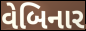
વેબિનાર